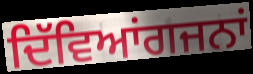
ਦਿੱਵਿਆਂਗਜਨਾਂ